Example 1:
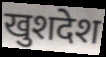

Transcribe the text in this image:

खुशदेश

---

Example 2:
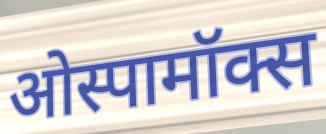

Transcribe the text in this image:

ओस्पामॉक्स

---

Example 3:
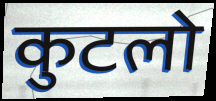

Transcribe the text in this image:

कुटलो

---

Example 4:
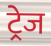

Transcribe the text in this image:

ट्रेज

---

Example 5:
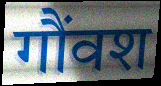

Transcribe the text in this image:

गौंवश